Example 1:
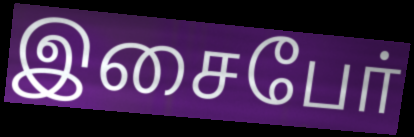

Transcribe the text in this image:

இசைபேர்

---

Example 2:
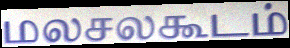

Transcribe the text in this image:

மலசலகூடம்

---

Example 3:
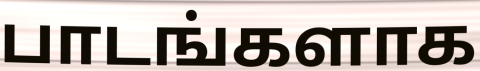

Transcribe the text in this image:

பாடங்களாக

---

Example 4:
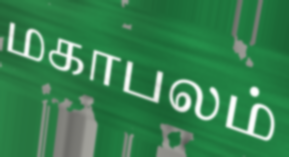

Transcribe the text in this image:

மகாபலம்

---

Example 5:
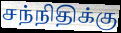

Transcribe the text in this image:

சந்நிதிக்கு